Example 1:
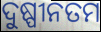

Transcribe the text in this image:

ଦୁଷ୍ପୀନତମ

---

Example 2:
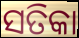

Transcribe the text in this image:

ସତିକା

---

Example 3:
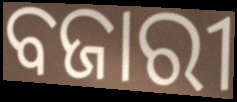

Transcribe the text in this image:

ବଜାରୀ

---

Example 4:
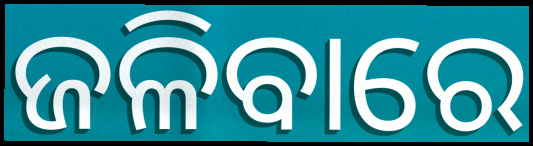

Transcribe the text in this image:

ଜଳିବାରେ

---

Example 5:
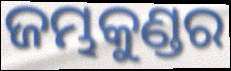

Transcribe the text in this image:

ଜମ୍ଭକୁଣ୍ଡର